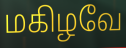
மகிழவே